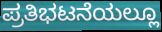
ಪ್ರತಿಭಟನೆಯಲ್ಲೂ